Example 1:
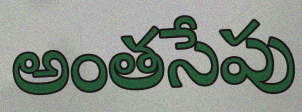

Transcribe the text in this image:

అంతసేపు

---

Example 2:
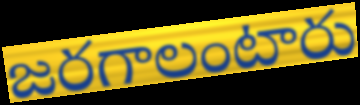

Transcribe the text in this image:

జరగాలంటారు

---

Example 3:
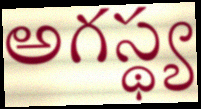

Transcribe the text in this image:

అగస్థ్య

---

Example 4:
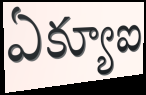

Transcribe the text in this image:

ఏక్యూఐ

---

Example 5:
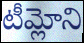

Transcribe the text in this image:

టీమ్లోని